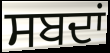
ਸਬਦਾਂ